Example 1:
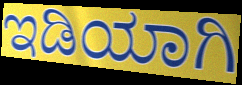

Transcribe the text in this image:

ಇಡಿಯಾಗಿ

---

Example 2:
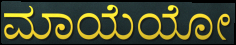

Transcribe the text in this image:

ಮಾಯೆಯೋ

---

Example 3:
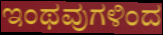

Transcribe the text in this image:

ಇಂಥವುಗಳಿಂದ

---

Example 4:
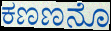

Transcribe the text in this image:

ಕಣಣನೊ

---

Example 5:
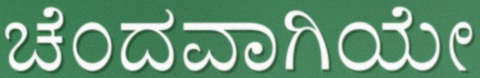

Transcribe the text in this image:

ಚೆಂದವಾಗಿಯೇ